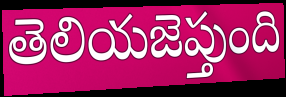
తెలియజెప్తుంది